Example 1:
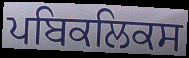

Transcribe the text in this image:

ਪਬਿਕਲਿਕਸ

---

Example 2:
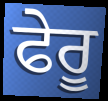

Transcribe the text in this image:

ਫੇਰੂ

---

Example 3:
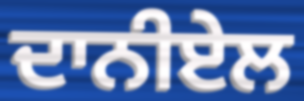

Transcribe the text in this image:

ਦਾਨੀਏਲ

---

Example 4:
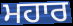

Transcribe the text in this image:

ਮਹਾਰ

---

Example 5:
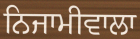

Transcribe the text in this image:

ਨਿਜਾਮੀਵਾਲਾ